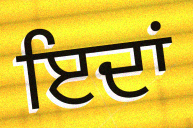
ਇਦਾਂ